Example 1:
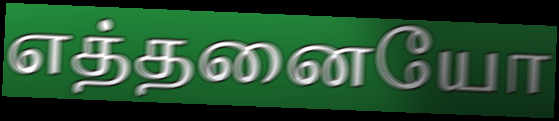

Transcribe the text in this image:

எத்தனையோ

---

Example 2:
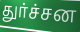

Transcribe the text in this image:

துர்ச்சன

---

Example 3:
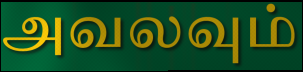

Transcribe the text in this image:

அவலவும்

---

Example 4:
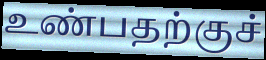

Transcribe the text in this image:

உண்பதற்குச்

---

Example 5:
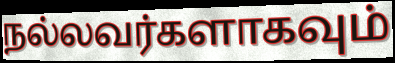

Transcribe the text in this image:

நல்லவர்களாகவும்